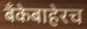
बँकेबाहेरच